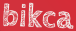
bikca